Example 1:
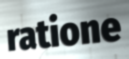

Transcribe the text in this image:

ratione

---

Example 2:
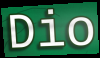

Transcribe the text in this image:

Dio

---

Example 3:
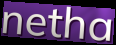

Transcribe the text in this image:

netha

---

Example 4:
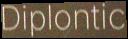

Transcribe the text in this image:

Diplontic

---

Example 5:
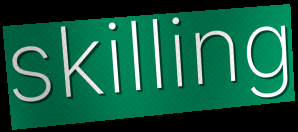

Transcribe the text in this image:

skilling